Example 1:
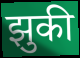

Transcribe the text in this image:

झुकी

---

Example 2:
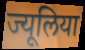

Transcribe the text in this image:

ज्यूलिया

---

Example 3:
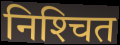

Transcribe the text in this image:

निश्‍चित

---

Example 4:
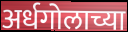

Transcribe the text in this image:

अर्धगोलाच्या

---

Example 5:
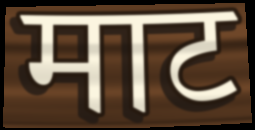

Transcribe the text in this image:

माट